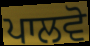
ਪਾਲਵੋ